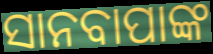
ସାନବାପାଙ୍କ